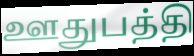
ஊதுபத்தி